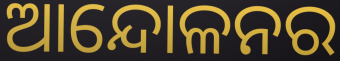
ଆନ୍ଦୋଳନର